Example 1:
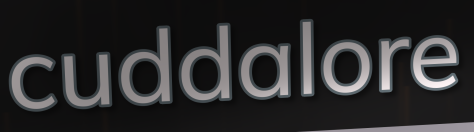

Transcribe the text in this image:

cuddalore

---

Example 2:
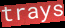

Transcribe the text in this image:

trays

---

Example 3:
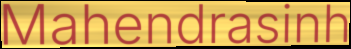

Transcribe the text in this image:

Mahendrasinh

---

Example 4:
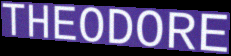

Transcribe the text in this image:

THEODORE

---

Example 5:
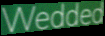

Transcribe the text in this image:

Wedded